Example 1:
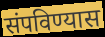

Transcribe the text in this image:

संपविण्यास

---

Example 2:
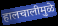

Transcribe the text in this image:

हालचालीमुळे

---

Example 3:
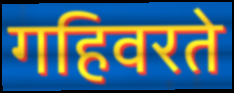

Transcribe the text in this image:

गहिवरते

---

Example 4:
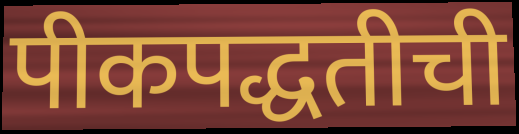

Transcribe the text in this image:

पीकपद्धतीची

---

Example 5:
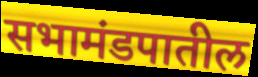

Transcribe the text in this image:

सभामंडपातील